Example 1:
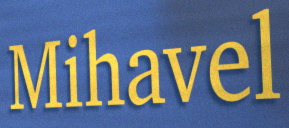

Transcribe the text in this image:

Mihavel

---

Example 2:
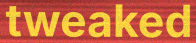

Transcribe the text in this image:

tweaked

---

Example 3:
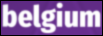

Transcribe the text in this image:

belgium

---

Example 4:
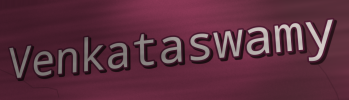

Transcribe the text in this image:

Venkataswamy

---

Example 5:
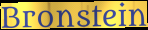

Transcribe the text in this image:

Bronstein